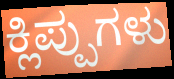
ಕ್ಲಿಪ್ಪುಗಳು